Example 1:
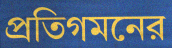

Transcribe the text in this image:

প্রতিগমনের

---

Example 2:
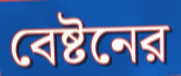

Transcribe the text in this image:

বেষ্টনের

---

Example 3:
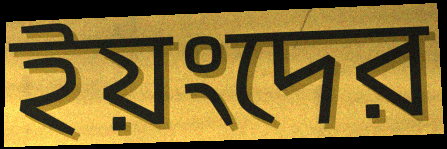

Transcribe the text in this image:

ইয়ংদের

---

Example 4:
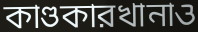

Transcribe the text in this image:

কাণ্ডকারখানাও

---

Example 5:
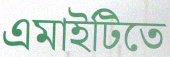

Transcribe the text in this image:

এমাইটিতে